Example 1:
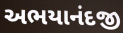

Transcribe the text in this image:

અભયાનંદજી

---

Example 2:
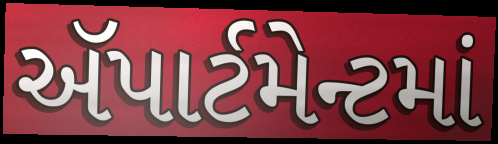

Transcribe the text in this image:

ઍપાર્ટમેન્ટમાં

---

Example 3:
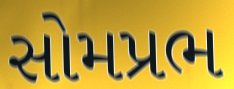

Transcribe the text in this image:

સોમપ્રભ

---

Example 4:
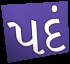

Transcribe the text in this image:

પદં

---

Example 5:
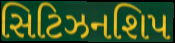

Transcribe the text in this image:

સિટિઝનશિપ